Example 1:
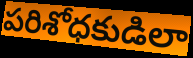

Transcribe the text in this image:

పరిశోధకుడిలా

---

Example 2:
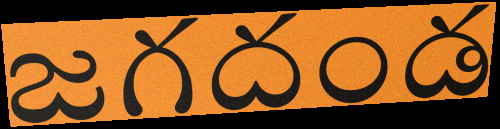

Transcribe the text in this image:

జగదండ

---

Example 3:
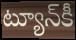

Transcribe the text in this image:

ట్యూన్‌కీ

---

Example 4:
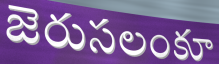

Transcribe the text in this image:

జెరుసలంకూ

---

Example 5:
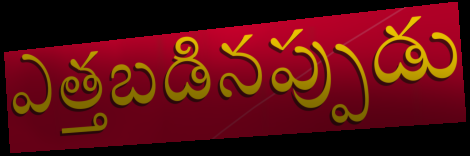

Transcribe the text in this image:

ఎత్తబడినప్పుడు